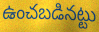
ఉంచబడినట్టు